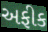
અફીક